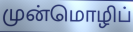
முன்மொழிப்